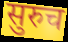
सुरुच